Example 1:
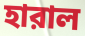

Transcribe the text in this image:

হারাল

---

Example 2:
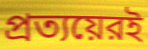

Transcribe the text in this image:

প্রত্যয়েরই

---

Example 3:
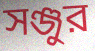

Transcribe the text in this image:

সঞ্জুর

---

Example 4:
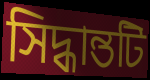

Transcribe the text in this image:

সিদ্ধান্তটি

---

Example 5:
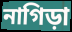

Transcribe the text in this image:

নাগিড়া